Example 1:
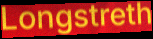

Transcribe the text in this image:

Longstreth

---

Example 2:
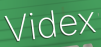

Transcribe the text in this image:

Videx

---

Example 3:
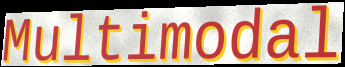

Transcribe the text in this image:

Multimodal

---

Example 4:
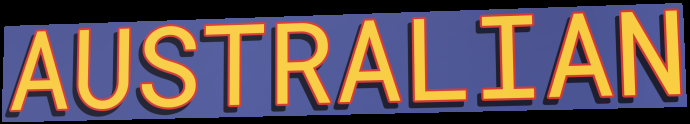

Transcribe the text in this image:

AUSTRALIAN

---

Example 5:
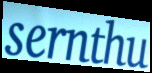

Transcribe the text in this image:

sernthu